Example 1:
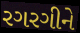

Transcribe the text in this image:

રગરગીને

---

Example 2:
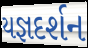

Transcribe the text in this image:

યજ્ઞદર્શન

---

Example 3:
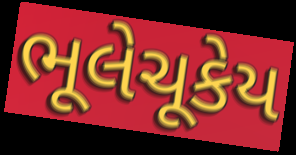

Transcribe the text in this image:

ભૂલેચૂકેય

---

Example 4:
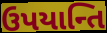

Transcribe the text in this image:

ઉપયાન્તિ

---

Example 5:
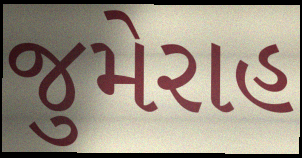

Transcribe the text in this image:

જુમેરાહ